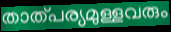
താത്പര്യമുള്ളവരും